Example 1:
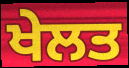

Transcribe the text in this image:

ਖੇਲਤ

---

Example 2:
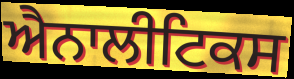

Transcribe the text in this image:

ਐਨਾਲੀਟਿਕਸ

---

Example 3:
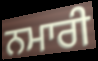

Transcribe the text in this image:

ਨਮਾਰੀ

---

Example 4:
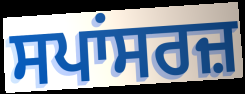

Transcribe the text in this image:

ਸਪਾਂਸਰਜ਼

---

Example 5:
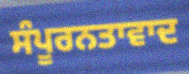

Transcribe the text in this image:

ਸੰਪੂਰਨਤਾਵਾਦ